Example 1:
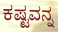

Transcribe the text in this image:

ಕಷ್ಟವನ್ನ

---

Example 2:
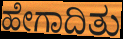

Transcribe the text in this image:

ಹೇಗಾದಿತು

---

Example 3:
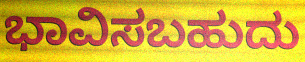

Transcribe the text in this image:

ಭಾವಿಸಬಹುದು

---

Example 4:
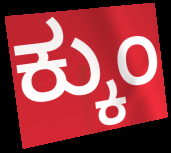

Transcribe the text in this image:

ಕ್ಕುಂ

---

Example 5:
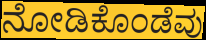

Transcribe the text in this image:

ನೋಡಿಕೊಂಡೆವು